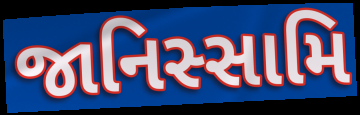
જાનિસ્સામિ